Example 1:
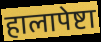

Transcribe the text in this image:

हालापेष्टा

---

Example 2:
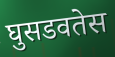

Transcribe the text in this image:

घुसडवतेस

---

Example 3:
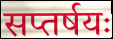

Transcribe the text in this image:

सप्तर्षयः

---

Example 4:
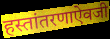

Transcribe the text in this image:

हस्तांतरणाऐवजी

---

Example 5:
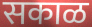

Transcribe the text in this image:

सकाळ